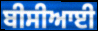
ਬੀਸੀਆਈ